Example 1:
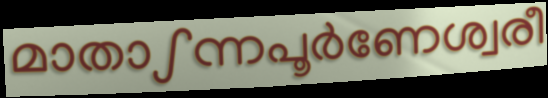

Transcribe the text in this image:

മാതാഽന്നപൂർണേശ്വരീ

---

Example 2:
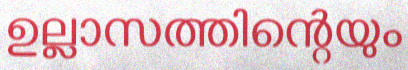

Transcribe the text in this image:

ഉല്ലാസത്തിന്റെയും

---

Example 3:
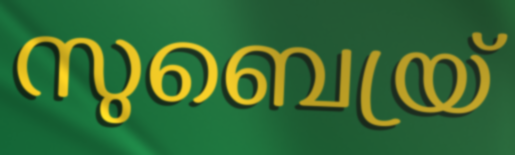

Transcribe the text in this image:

സുബെയ്ര്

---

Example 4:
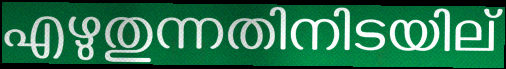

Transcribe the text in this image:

എഴുതുന്നതിനിടയില്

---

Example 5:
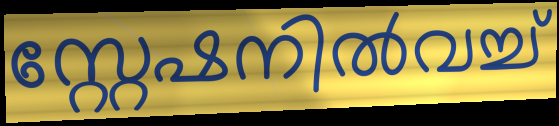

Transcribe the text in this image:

സ്റ്റേഷനിൽവച്ച്